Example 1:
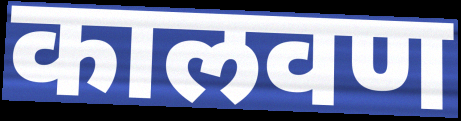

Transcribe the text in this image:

कालवण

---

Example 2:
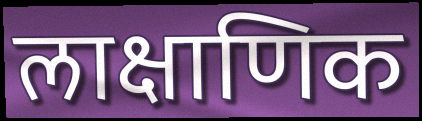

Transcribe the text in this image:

लाक्षाणिक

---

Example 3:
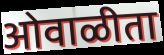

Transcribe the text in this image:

ओवाळीता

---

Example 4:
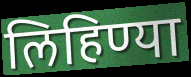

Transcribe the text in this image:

लिहिण्या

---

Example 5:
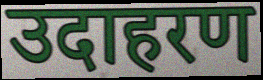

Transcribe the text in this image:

उदाहरण